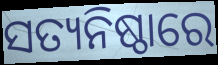
ସତ୍ୟନିଷ୍ଠାରେ